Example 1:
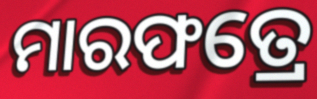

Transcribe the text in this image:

ମାରଫତ୍ରେ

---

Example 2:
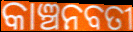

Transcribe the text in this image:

କାଞ୍ଚନବତୀ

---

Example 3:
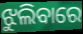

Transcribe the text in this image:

ଝୁଲିବାରେ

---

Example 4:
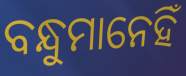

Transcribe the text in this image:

ବନ୍ଧୁମାନେହିଁ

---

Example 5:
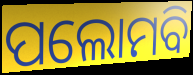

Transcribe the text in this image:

ପଲୋମବି